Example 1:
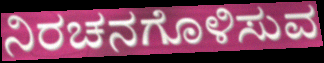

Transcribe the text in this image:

ನಿರಚನಗೊಳಿಸುವ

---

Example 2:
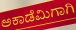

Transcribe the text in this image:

ಅಕಾಡೆಮಿಗಾಗಿ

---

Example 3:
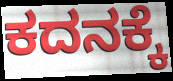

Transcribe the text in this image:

ಕದನಕ್ಕೆ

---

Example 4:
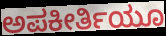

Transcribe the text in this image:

ಅಪಕೀರ್ತಿಯೂ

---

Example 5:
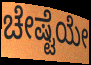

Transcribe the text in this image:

ಚೇಷ್ಟೆಯೇ